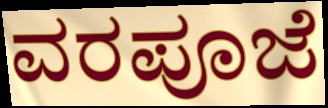
ವರಪೂಜೆ